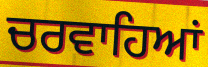
ਚਰਵਾਹਿਆਂ